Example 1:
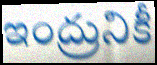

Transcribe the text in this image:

ఇంద్రునికీ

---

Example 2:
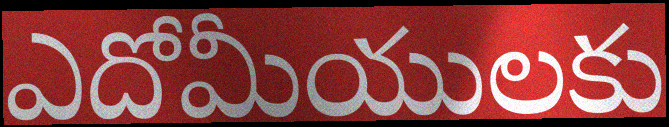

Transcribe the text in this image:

ఎదోమీయులకు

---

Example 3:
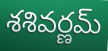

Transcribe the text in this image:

శశివర్ణమ్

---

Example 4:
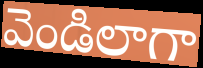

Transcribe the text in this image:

వెండిలాగా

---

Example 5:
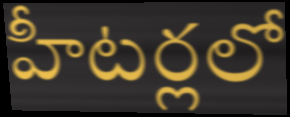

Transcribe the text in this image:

హీటర్లలో